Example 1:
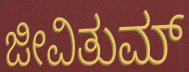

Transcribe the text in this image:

ಜೀವಿತುಮ್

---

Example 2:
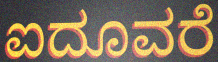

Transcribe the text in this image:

ಐದೂವರೆ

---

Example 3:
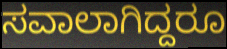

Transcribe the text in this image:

ಸವಾಲಾಗಿದ್ದರೂ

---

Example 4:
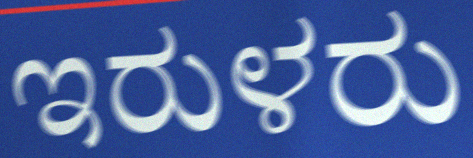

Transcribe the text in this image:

ಇರುಳರು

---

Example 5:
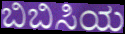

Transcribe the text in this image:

ಬಿಬಿಸಿಯ